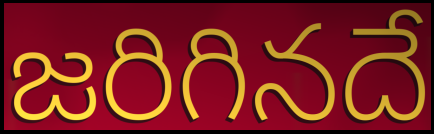
జరిగినదే